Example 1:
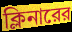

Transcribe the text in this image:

ক্লিনারের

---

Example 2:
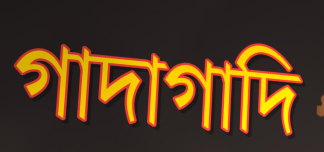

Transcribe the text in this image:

গাদাগাদি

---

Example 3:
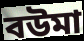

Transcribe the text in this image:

বউমা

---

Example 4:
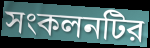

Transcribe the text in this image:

সংকলনটির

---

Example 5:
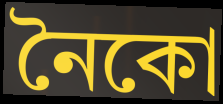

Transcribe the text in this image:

নৈকো